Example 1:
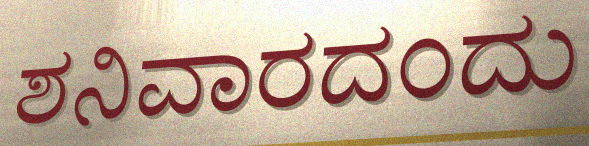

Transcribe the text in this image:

ಶನಿವಾರದಂದು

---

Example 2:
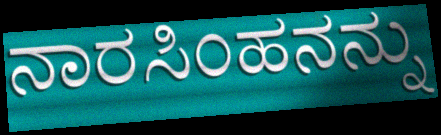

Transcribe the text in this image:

ನಾರಸಿಂಹನನ್ನು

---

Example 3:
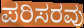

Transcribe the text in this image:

ಪರಿಸರವು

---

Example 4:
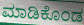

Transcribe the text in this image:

ಮಾಡಿಕೊಂಡ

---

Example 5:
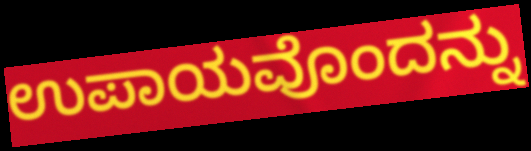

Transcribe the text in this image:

ಉಪಾಯವೊಂದನ್ನು